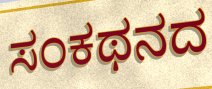
ಸಂಕಥನದ